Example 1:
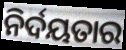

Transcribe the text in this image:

ନିର୍ଦୟତାର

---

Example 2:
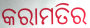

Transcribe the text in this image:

କରାମତିର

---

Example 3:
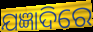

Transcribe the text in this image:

ଯଜ୍ଞାଦିରେ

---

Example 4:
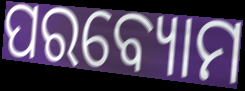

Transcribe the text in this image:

ପରବ୍ୟୋମ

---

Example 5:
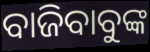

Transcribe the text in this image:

ବାଜିବାବୁଙ୍କ